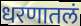
धरणातलं